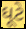
ઘૂટે